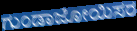
ಗುಂಡಾಜೋಯಿಸರ